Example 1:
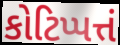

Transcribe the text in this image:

કોટિપ્પત્તં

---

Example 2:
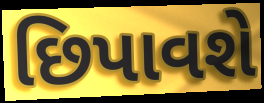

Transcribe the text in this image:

છિપાવશે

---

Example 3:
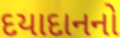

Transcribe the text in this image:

દયાદાનનો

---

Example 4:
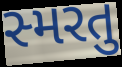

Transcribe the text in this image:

સ્મરતુ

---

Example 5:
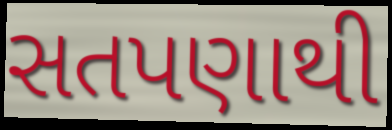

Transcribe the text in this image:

સતપણાથી